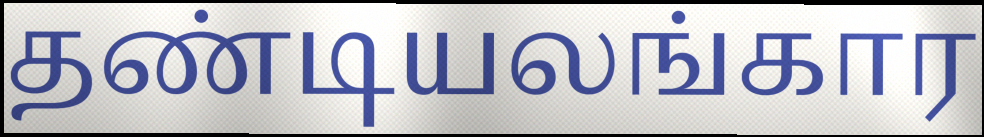
தண்டியலங்கார